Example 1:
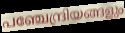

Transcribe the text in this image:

പഞ്ചേന്ദ്രിയങ്ങളും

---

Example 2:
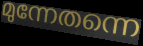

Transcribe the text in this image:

മുന്നേതന്നെ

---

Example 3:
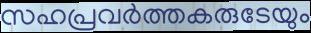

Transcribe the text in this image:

സഹപ്രവർത്തകരുടേയും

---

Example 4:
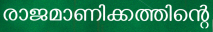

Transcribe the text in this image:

രാജമാണിക്കത്തിന്റെ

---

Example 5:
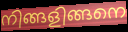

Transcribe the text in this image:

നിങ്ങളിങ്ങനെ